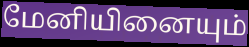
மேனியினையும்